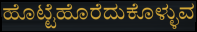
ಹೊಟ್ಟೆಹೊರೆದುಕೊಳ್ಳುವ